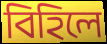
বিহিলে